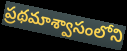
ప్రథమాశ్వాసంలోని